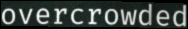
overcrowded